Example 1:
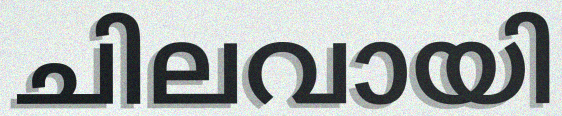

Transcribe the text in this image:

ചിലവായി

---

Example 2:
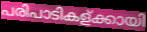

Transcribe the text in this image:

പരിപാടികള്ക്കായി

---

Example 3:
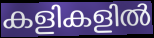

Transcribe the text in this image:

കളികളിൽ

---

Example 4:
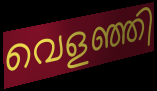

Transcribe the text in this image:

വെളഞ്ഞി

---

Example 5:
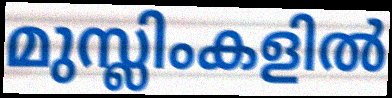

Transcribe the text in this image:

മുസ്ലിംകളിൽ